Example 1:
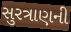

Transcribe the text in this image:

સુરત્રાણની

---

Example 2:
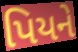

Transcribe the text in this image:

પિયને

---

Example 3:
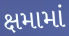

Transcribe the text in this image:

ક્ષમામાં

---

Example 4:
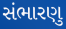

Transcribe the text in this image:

સંભારણુ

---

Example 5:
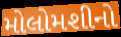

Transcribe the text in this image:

મોલોમશીનો